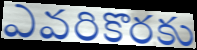
ఎవరికొరకు